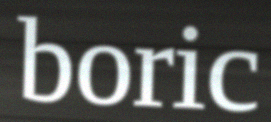
boric